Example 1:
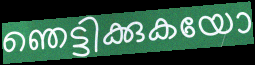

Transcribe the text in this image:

ഞെട്ടിക്കുകയോ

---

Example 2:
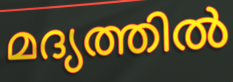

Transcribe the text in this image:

മദ്യത്തിൽ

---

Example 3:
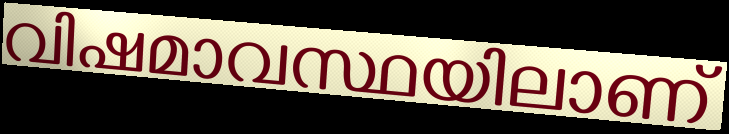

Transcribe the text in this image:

വിഷമാവസ്ഥയിലാണ്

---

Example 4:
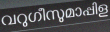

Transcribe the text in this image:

വറുഗീസുമാപ്പിള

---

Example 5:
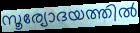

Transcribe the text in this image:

സൂര്യോദയത്തിൽ